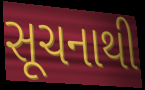
સૂચનાથી